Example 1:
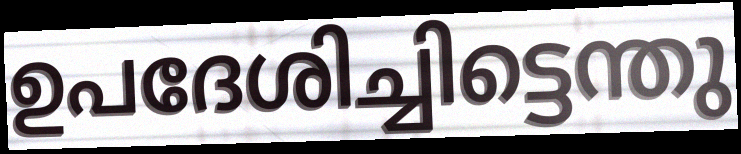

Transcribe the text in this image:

ഉപദേശിച്ചിട്ടെന്തു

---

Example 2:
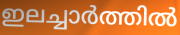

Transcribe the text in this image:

ഇലച്ചാർത്തിൽ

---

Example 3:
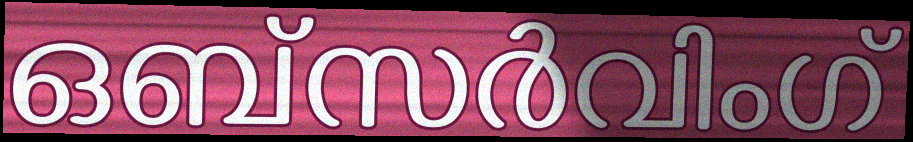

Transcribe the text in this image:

ഒബ്സർവിംഗ്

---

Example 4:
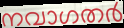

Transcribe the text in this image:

നവാഗതർ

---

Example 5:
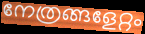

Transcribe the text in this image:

നേത്രങ്ങളേറ്റം